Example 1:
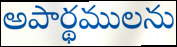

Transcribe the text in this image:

అపార్థములను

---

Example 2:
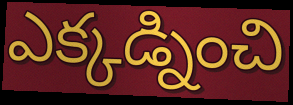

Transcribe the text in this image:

ఎక్కడ్నించి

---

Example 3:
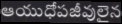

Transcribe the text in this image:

ఆయుధోపజీవులైన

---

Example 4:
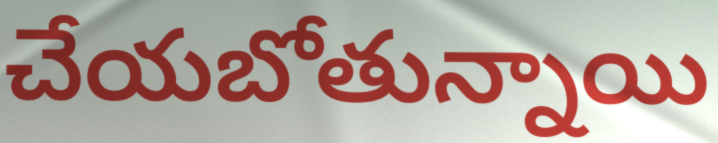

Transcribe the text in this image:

చేయబోతున్నాయి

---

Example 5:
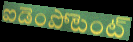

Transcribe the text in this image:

ఐడెంపోటెంట్